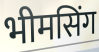
भीमसिंग